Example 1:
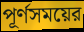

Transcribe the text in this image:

পূর্ণসময়ের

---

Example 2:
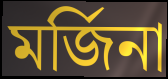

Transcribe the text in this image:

মর্জিনা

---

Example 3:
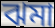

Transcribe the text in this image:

ঝমা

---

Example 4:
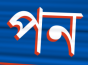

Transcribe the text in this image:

পন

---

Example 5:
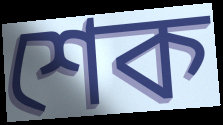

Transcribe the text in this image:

শেক